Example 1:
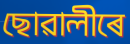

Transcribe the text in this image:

ছোৱালীৰে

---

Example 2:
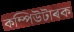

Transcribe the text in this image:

কম্পিউটাৰক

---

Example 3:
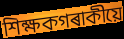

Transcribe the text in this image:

শিক্ষকগৰাকীয়ে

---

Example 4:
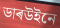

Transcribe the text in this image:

ডাৰউইনে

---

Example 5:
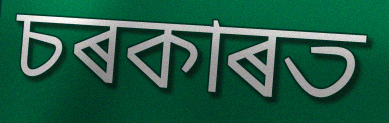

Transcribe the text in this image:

চৰকাৰত